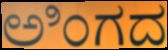
ಅಿಂಗದ